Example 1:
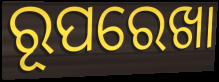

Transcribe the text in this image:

ରୂପରେଖା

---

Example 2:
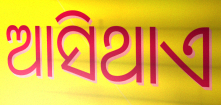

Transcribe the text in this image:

ଆସିଥାଏ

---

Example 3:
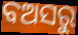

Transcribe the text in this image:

ବଅସରୁ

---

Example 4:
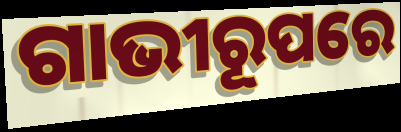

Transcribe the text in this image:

ଗାଭୀରୂପରେ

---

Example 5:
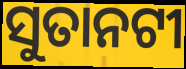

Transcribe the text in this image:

ସୁତାନଟୀ